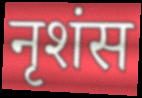
नृशंस